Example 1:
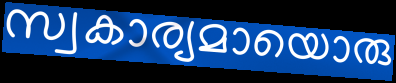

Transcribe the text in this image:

സ്വകാര്യമായൊരു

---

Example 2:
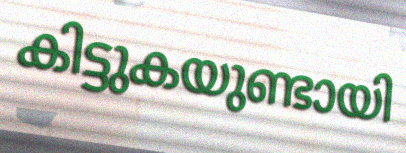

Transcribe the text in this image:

കിട്ടുകയുണ്ടായി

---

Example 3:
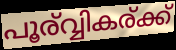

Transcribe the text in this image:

പൂര്വ്വികര്ക്ക്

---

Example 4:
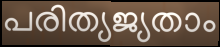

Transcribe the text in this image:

പരിത്യജ്യതാം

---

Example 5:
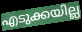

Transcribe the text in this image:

എടുക്കയില്ല